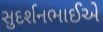
સુદર્શનભાઈએ